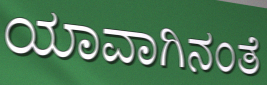
ಯಾವಾಗಿನಂತೆ